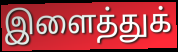
இளைத்துக்